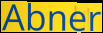
Abner